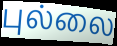
புல்லை